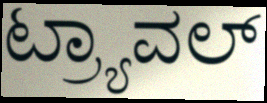
ಟ್ರ್ಯಾವಲ್